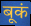
बूकं